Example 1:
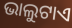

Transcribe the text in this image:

ଭାଲୁଟାଏ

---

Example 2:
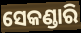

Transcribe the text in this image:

ସେକଣ୍ଡାରି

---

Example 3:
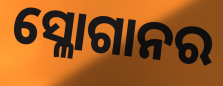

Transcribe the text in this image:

ସ୍ଳୋଗାନର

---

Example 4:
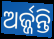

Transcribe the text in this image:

ଅର୍ଜ୍ଜନ୍ତି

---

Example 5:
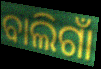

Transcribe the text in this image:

ବାଲିଗାଁ